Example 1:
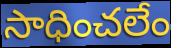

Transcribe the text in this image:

సాధించలేం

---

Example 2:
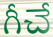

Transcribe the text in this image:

గీచే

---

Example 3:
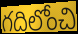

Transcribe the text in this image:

గదిలోంచి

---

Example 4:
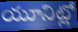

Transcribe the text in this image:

యూనిట్లో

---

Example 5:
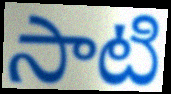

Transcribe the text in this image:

సాటి